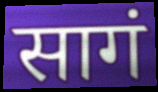
सागं